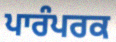
ਪਾਰੰਪਰਕ